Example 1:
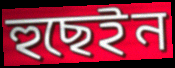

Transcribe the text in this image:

হুছেইন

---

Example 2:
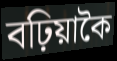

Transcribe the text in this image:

বঢ়িয়াকৈ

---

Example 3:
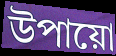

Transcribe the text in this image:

উপায়ো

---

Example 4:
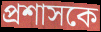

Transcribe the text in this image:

প্ৰশাসকে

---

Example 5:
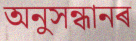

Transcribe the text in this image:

অনুসন্ধানৰ